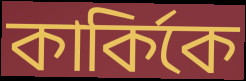
কার্কিকে